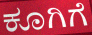
ಕೂಗಿಗೆ